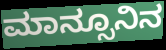
ಮಾನ್ಸೂನಿನ